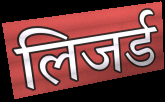
लिजर्ड